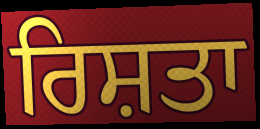
ਰਿਸ਼ਤਾ